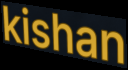
kishan